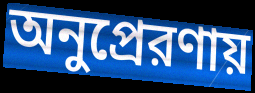
অনুপ্রেরণায়